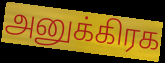
அனுக்கிரக